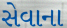
સેવાના